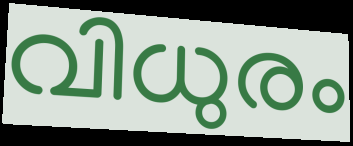
വിധുരം